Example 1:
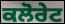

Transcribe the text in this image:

ਕਲੋਰੇਟ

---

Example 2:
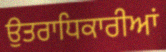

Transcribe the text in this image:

ਉਤਰਾਧਿਕਾਰੀਆਂ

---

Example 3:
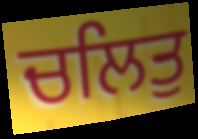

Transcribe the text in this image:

ਚਲਿਤੁ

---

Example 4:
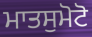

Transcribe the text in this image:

ਮਾਤਸੁਮੋਟੋ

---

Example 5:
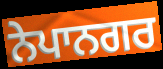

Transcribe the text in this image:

ਨੇਪਾਨਗਰ